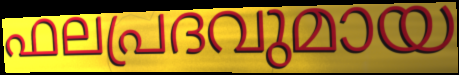
ഫലപ്രദവുമായ